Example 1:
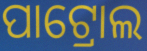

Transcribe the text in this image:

ପାଟ୍ରୋଲ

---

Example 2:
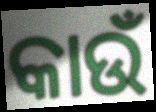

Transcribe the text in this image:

କାଉଁ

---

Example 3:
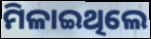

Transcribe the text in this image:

ମିଳାଇଥିଲେ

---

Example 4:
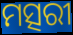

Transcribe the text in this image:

ମତ୍ସରୀ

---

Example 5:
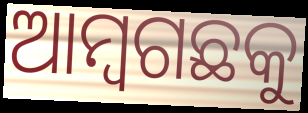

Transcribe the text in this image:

ଆମ୍ବଗଛକୁ